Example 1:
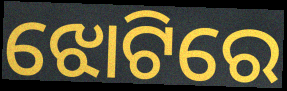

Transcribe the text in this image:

ଝୋଟିରେ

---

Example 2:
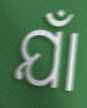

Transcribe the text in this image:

ଯାଁ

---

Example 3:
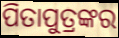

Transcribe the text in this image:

ପିତାପୁତ୍ରଙ୍କର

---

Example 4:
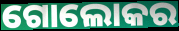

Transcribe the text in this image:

ଗୋଲୋକର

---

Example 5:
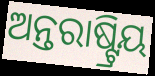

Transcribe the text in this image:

ଅନ୍ତରାଷ୍ଟ୍ରିୟ